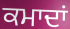
ਕਮਾਦਾਂ